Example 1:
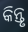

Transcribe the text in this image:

କିନ୍ତୃ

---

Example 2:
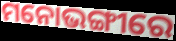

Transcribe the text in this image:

ମନୋଭଙ୍ଗୀରେ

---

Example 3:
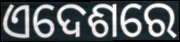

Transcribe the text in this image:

ଏଦେଶରେ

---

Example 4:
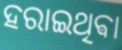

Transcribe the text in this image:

ହରାଇଥିଵା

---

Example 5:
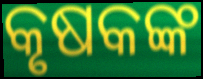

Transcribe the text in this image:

କୃଷକଙ୍କ